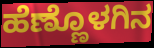
ಹೆಣ್ಣೊಳಗಿನ